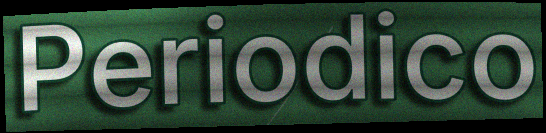
Periodico